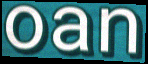
oan